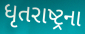
ધૃતરાષ્ટ્રના